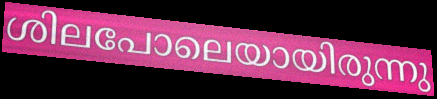
ശിലപോലെയായിരുന്നു